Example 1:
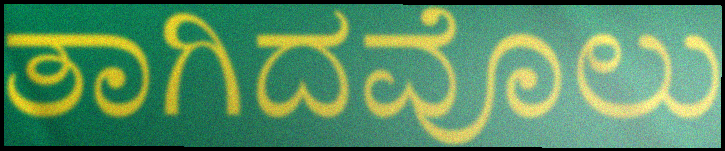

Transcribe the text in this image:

ತಾಗಿದವೊಲು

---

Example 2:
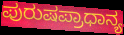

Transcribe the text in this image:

ಪುರುಷಪ್ರಾಧಾನ್ಯ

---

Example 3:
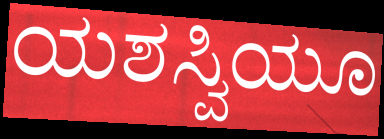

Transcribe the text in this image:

ಯಶಸ್ವಿಯೂ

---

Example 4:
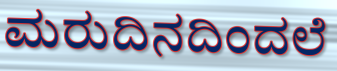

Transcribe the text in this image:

ಮರುದಿನದಿಂದಲೆ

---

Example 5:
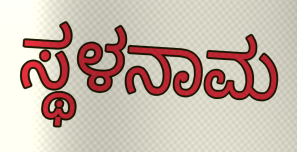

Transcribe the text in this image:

ಸ್ಥಳನಾಮ